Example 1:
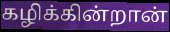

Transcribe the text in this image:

கழிக்கின்றான்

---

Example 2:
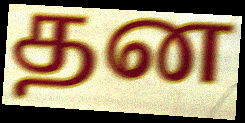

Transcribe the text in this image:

தன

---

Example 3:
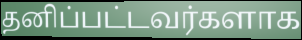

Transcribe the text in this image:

தனிப்பட்டவர்களாக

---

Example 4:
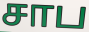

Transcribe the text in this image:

சாப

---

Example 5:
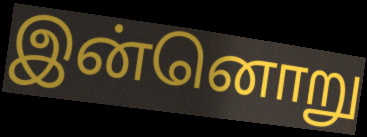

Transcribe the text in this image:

இன்னொறு